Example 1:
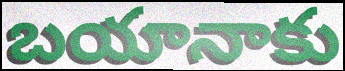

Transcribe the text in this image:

బయానాకు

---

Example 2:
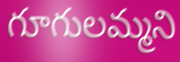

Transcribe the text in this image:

గూగులమ్మని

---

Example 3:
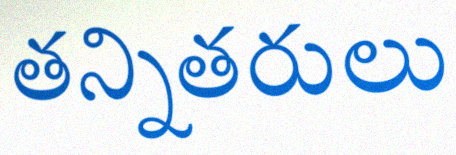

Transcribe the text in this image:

తన్నితరులు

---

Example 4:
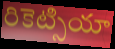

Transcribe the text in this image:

రికెట్సియా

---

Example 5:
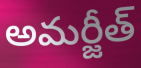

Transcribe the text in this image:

అమర్జీత్